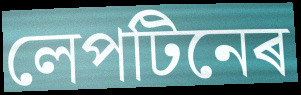
লেপটিনেৰ